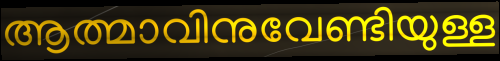
ആത്മാവിനുവേണ്ടിയുള്ള